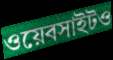
ওয়েবসাইটও